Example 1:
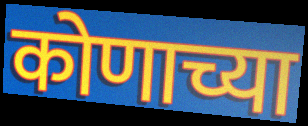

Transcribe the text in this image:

कोणाच्या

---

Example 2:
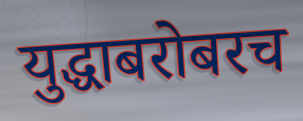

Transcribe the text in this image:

युद्धाबरोबरच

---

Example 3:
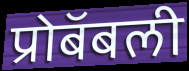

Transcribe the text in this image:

प्रोबॅबली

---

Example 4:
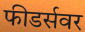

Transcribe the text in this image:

फीडर्सवर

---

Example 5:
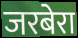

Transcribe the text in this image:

जरबेरा